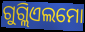
ଗୁଗ୍ଲିଏଲମୋ